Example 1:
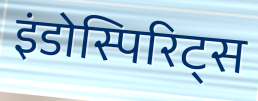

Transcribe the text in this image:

इंडोस्पिरिट्स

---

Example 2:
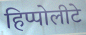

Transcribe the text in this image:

हिप्पोलीटे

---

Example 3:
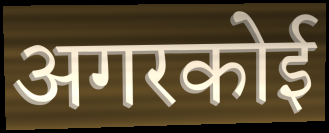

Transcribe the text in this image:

अगरकोई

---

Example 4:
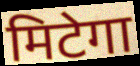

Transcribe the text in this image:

मिटेगा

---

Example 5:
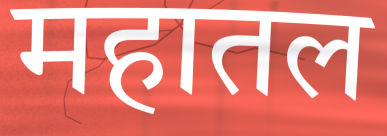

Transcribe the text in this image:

महातल